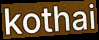
kothai